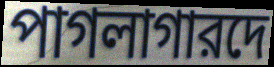
পাগলাগারদে